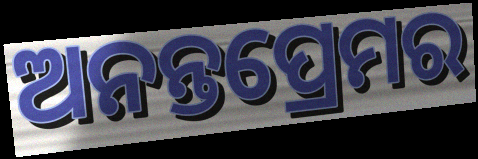
ଅନନ୍ତପ୍ରେମର